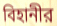
বিহানীর